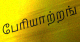
பேரியாற்றங்